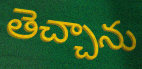
తెచ్చాను